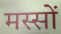
मस्सों